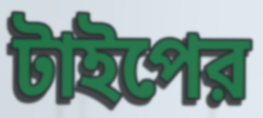
টাইপের